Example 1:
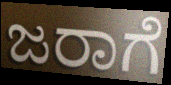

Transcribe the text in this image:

ಜರಾಗೆ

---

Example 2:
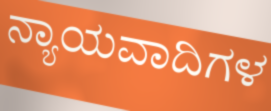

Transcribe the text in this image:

ನ್ಯಾಯವಾದಿಗಳ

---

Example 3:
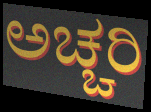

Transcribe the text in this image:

ಅಚ್ಚರಿ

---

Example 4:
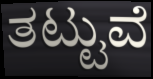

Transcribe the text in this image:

ತಟ್ಟುವೆ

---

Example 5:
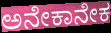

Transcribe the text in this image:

ಅನೇಕಾನೇಕ